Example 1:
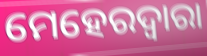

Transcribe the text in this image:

ମେହେରଦ୍ୱାରା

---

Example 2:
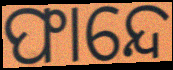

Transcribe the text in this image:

ଫାନ୍ଦେ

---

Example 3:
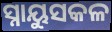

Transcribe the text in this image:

ସ୍ନାୟୁସକଳ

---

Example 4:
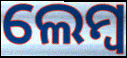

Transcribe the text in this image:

ଲେମ୍ବ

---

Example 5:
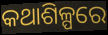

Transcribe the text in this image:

କଥାଶିଳ୍ପରେ